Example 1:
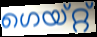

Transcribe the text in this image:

ഗെയ്റ്റ്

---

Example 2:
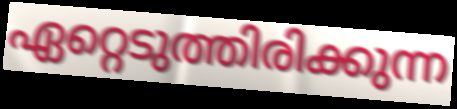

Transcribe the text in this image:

ഏറ്റെടുത്തിരിക്കുന്ന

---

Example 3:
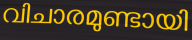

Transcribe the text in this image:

വിചാരമുണ്ടായി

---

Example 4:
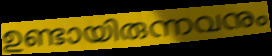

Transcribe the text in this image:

ഉണ്ടായിരുന്നവനും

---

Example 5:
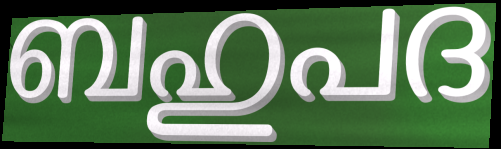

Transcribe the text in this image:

ബഹുപദ